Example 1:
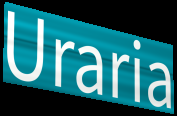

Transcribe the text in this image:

Uraria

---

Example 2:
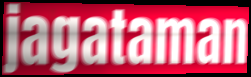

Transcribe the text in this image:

jagataman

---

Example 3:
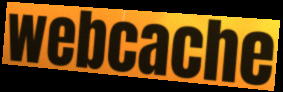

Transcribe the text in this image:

webcache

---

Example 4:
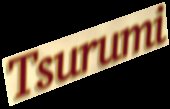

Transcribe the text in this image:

Tsurumi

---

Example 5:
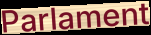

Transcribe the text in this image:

Parlament